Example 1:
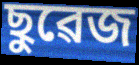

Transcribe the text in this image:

ছুৱেজ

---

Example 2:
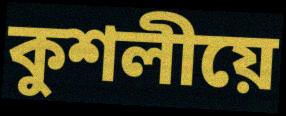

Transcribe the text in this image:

কুশলীয়ে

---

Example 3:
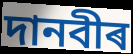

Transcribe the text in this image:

দানবীৰ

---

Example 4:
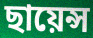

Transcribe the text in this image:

ছায়েন্স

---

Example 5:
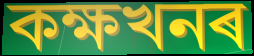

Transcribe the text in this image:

কক্ষখনৰ